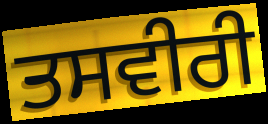
ਤਸਵੀਰੀ